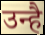
उन्है